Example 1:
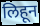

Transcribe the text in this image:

लिहून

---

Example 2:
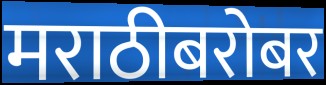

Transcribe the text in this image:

मराठीबरोबर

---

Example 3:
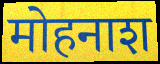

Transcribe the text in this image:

मोहनाश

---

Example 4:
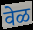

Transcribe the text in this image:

वेळ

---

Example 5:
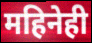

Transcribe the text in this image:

महिनेही